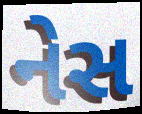
નેસ